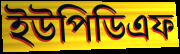
ইউপিডিএফ